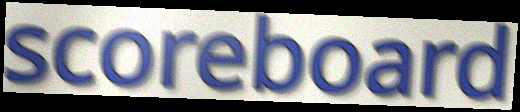
scoreboard